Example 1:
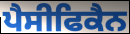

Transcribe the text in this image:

ਪੈਸੀਫਿਕੈਨ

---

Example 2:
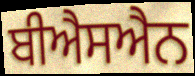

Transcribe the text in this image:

ਬੀਐਸਐਨ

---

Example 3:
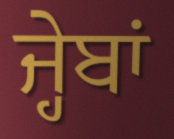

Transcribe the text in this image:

ਜ੍ਹੇਬਾਂ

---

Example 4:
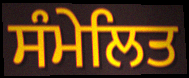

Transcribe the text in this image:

ਸੰਮੇਲਿਤ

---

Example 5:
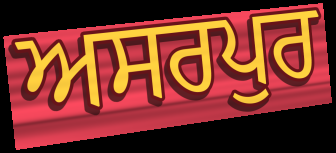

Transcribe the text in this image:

ਅਸਰਪੁਰ